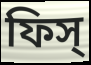
ফিস্